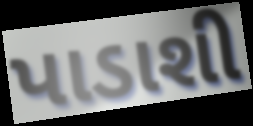
પાડાશી